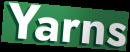
Yarns